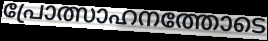
പ്രോത്സാഹനത്തോടെ